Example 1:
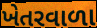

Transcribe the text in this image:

ખેતરવાળા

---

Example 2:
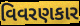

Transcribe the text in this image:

વિવરણકાર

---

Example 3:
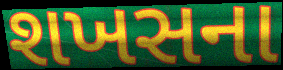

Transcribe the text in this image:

શખસના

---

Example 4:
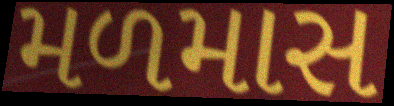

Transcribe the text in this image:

મળમાસ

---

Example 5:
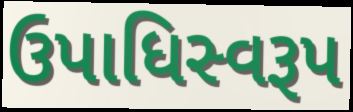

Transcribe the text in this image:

ઉપાધિસ્વરૂપ